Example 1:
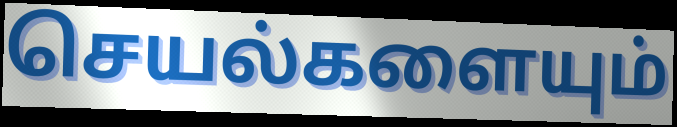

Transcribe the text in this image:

செயல்களையும்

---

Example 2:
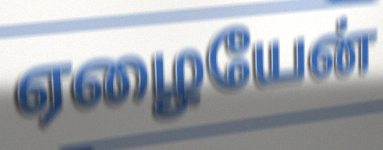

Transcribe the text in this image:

ஏழையேன்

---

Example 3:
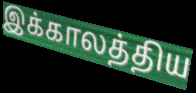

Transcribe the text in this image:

இக்காலத்திய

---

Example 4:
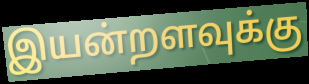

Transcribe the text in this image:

இயன்றளவுக்கு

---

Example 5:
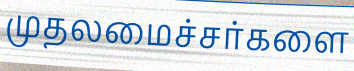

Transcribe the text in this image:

முதலமைச்சர்களை